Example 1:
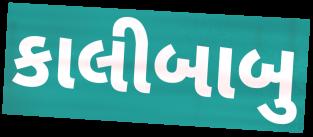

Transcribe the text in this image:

કાલીબાબુ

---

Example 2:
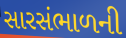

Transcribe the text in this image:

સારસંભાળની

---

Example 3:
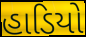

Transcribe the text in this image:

હાડિયો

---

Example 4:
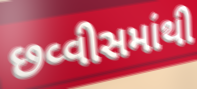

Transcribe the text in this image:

છવ્વીસમાંથી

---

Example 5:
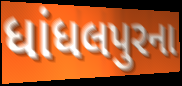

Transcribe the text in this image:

ધાંધલપુરના